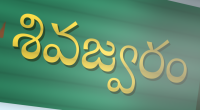
శివజ్వరం